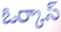
ఓర్కాస్